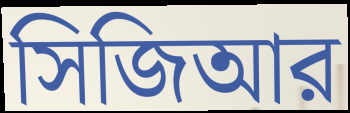
সিজিআর